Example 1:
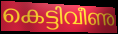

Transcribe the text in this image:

കെട്ടിവീണു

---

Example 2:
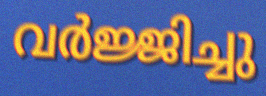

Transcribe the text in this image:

വർജ്ജിച്ചു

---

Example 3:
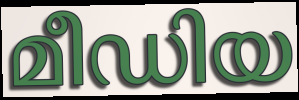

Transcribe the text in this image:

മീഡിയ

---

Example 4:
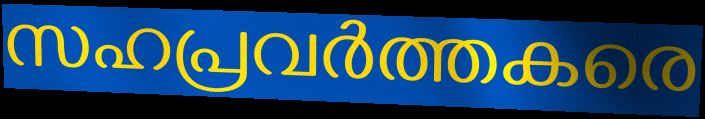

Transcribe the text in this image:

സഹപ്രവർത്തകരെ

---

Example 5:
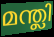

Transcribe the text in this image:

മന്ത്ലി